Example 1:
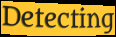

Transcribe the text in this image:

Detecting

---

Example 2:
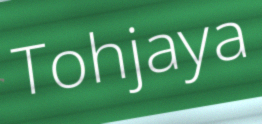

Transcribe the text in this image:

Tohjaya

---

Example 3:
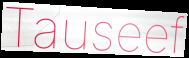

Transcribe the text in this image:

Tauseef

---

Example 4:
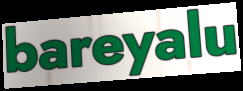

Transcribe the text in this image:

bareyalu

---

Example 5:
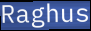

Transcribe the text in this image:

Raghus